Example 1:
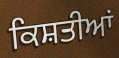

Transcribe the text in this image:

ਕਿਸ਼ਤੀਆਂ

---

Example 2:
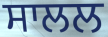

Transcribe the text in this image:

ਸਾਲਲ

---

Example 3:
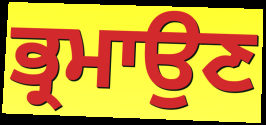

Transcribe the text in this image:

ਭ੍ਰਮਾਉਣ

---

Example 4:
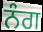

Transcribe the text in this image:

ਨੰਗ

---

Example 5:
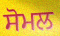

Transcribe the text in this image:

ਸੋਮਲ